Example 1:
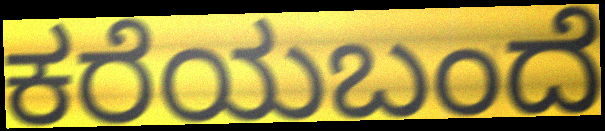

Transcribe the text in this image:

ಕರೆಯಬಂದೆ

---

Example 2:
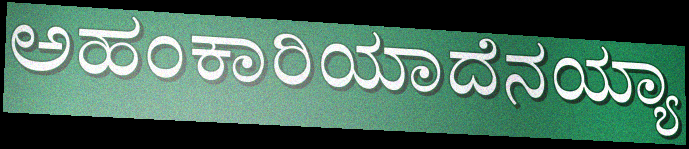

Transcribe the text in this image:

ಅಹಂಕಾರಿಯಾದೆನಯ್ಯಾ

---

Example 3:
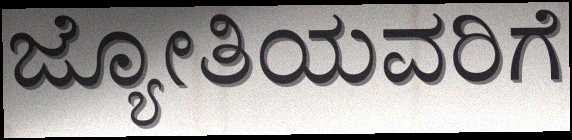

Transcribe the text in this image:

ಜ್ಯೋತಿಯವರಿಗೆ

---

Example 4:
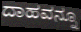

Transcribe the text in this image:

ದಾಹವನ್ನೂ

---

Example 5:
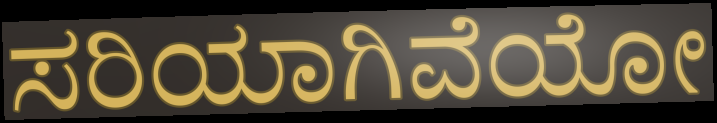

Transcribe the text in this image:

ಸರಿಯಾಗಿವೆಯೋ